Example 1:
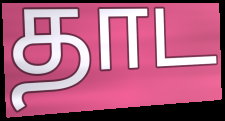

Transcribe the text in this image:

தாட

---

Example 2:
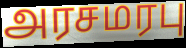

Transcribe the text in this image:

அரசமரபு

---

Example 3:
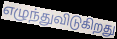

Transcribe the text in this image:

எழுந்துவிடுகிறது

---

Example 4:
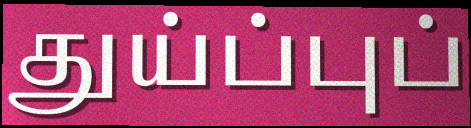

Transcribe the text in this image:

துய்ப்புப்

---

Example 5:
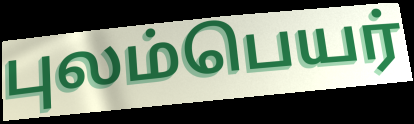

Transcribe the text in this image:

புலம்பெயர்